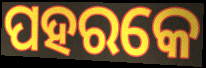
ପହରକେ